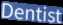
Dentist